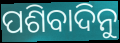
ପଶିବାଦିନୁ